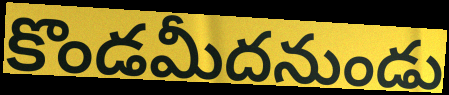
కొండమీదనుండు